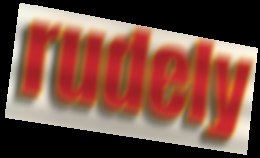
rudely